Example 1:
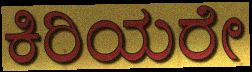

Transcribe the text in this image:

ಕಿರಿಯರೇ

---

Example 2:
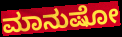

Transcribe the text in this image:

ಮಾನುಷೋ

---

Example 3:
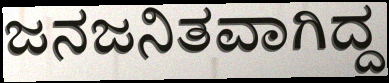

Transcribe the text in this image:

ಜನಜನಿತವಾಗಿದ್ದ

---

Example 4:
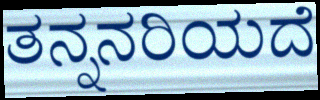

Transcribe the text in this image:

ತನ್ನನರಿಯದೆ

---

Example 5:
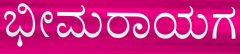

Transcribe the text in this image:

ಭೀಮರಾಯಗ